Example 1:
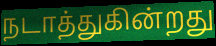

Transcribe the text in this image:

நடாத்துகின்றது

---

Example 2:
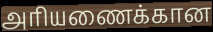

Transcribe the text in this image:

அரியணைக்கான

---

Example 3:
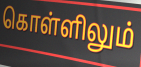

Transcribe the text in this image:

கொள்ளிலும்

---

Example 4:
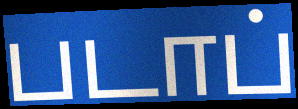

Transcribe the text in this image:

படாப்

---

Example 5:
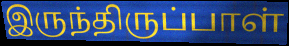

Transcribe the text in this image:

இருந்திருப்பாள்